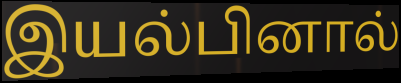
இயல்பினால்